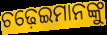
ଚଢ଼େଇମାନଙ୍କୁ